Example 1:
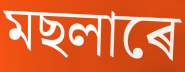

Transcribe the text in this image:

মছলাৰে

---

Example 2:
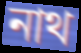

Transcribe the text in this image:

নাথ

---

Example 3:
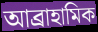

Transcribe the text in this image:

আব্ৰাহামিক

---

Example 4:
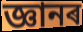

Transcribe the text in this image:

জ্ঞানৰ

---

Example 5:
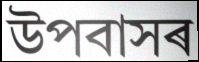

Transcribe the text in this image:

উপবাসৰ